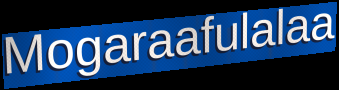
Mogaraafulalaa